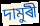
দামুৰী